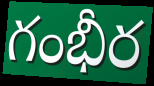
గంభీర